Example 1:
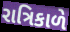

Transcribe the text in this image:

રાત્રિકાળે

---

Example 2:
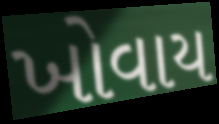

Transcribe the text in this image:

ખોવાય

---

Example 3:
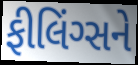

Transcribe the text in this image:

ફીલિંગ્સને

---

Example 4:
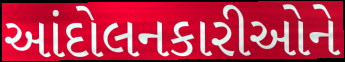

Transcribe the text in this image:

આંદોલનકારીઓને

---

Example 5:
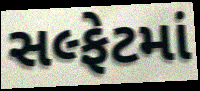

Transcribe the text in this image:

સલ્ફેટમાં